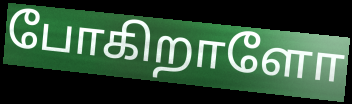
போகிறாளோ